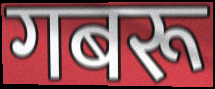
गबरू